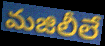
మజిలీలే